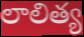
లాలిత్య